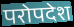
परोपदेश